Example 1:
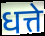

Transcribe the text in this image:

धत्ते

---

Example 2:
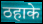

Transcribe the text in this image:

ठहाके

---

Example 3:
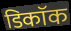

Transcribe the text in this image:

डिकॉक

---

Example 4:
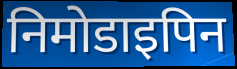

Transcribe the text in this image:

निमोडाइपिन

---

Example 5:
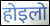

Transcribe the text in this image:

होइलो